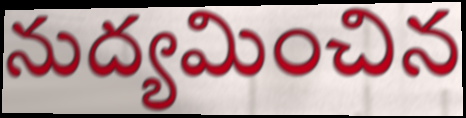
నుద్యమించిన